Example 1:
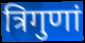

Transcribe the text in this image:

त्रिगुणां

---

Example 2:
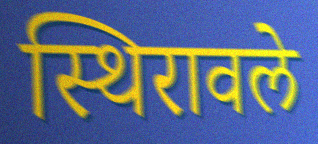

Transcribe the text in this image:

स्थिरावले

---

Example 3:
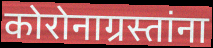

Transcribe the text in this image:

कोरोनाग्रस्तांना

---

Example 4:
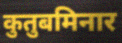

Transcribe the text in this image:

कुतुबमिनार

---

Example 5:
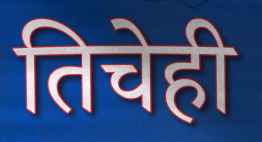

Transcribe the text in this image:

तिचेही